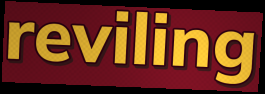
reviling